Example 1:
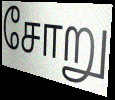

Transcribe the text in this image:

சோறு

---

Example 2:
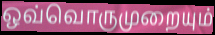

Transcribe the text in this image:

ஒவ்வொருமுறையும்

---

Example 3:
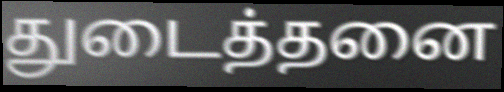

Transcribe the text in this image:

துடைத்தனை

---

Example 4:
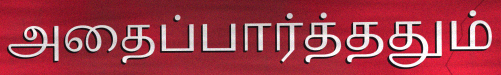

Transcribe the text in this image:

அதைப்பார்த்ததும்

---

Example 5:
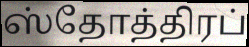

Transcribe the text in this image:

ஸ்தோத்திரப்